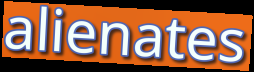
alienates